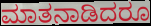
ಮಾತನಾಡಿದರೂ